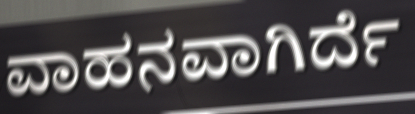
ವಾಹನವಾಗಿರ್ದೆ